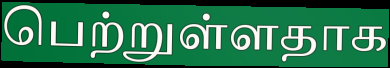
பெற்றுள்ளதாக